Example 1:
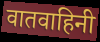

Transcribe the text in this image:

वातवाहिनी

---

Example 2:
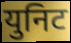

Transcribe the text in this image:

युनिट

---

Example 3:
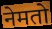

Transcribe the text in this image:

नेमतो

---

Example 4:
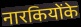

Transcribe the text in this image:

नारकियोंके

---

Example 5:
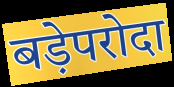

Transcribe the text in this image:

बड़ेपरोदा